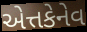
એત્તકેનેવ